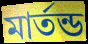
মার্তন্ড